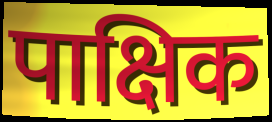
पाक्षिक